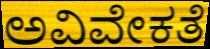
ಅವಿವೇಕತೆ